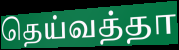
தெய்வத்தா